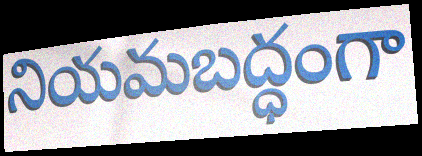
నియమబద్ధంగా